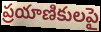
ప్రయాణికులపై